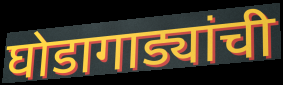
घोडागाड्यांची